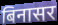
बिनासर